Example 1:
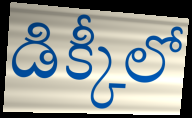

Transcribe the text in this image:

డిక్కీలో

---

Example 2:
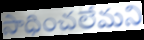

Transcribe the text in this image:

సాధించలేమని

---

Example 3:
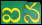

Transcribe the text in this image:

ఐన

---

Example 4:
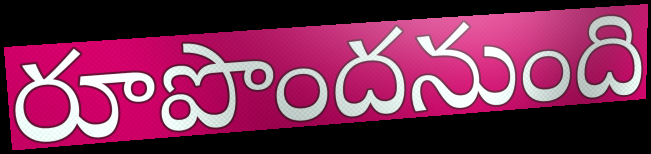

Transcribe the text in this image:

రూపొందనుంది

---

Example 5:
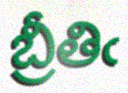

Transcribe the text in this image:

బ్రీతిఁ